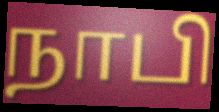
நாபி